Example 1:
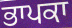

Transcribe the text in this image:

ਭਾਪਕਾ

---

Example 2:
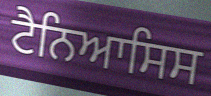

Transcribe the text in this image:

ਟੈਨਿਆਸਿਸ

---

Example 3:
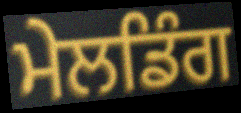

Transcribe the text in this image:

ਮੇਲਡਿੰਗ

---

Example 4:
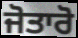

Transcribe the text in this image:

ਜੋਤਾਰੋ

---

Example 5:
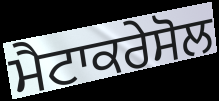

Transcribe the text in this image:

ਮੈਟਾਕਰੇਸੋਲ